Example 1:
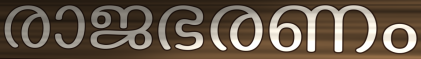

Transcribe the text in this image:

രാജഭരണം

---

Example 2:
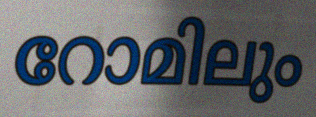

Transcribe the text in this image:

റോമിലും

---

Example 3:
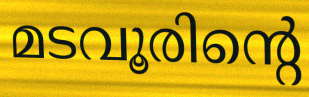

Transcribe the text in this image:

മടവൂരിന്റെ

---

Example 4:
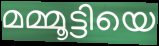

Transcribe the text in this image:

മമ്മൂട്ടിയെ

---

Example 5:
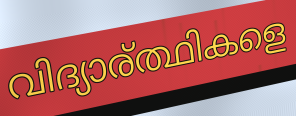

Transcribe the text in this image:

വിദ്യാര്ത്ഥികളെ